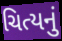
ચિત્યનું